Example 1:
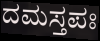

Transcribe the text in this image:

ದಮಸ್ತಪಃ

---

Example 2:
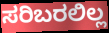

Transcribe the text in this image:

ಸರಿಬರಲಿಲ್ಲ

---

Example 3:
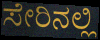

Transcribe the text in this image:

ಸೇರಿನಲ್ಲಿ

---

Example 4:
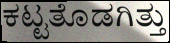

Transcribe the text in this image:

ಕಟ್ಟತೊಡಗಿತ್ತು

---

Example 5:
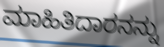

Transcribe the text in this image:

ಮಾಹಿತಿದಾರನನ್ನು